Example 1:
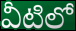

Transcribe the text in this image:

వీటిలో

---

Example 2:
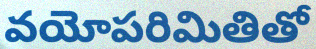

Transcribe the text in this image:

వయోపరిమితితో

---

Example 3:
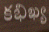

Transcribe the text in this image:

కభిఖ్య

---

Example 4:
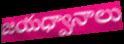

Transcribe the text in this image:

జయధ్వానాలు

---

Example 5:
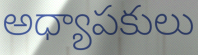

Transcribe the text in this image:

అధ్యాపకులు